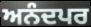
ਅਨੰਦਪਰ